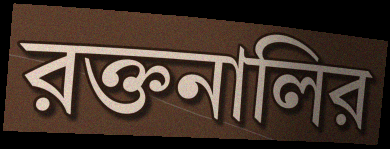
রক্তনালির